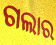
ଗଲାର